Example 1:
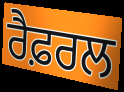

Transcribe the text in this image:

ਰੈਫ਼ਰਲ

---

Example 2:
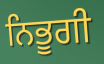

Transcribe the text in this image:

ਨਿਭੂਗੀ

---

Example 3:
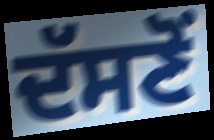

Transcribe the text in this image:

ਦੱਸਣੋਂ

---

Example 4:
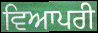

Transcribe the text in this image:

ਵਿਆਪਰੀ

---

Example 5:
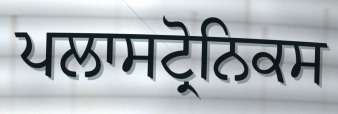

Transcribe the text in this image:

ਪਲਾਸਟ੍ਰੋਨਿਕਸ